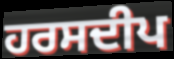
ਹਰਸਦੀਪ